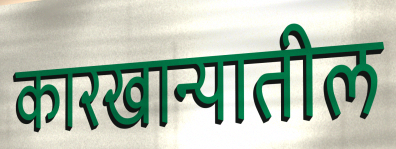
कारखान्यातील